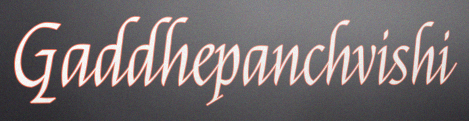
Gaddhepanchvishi